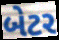
બેટર